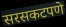
सरसकटपणे